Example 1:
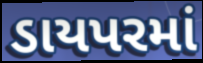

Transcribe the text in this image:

ડાયપરમાં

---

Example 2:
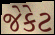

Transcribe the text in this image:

જેકેટ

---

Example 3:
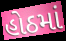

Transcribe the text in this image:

હોઠમાં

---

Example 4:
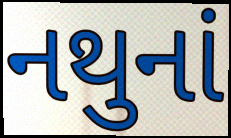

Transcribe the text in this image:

નથુનાં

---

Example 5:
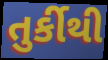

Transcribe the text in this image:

તુર્કીથી